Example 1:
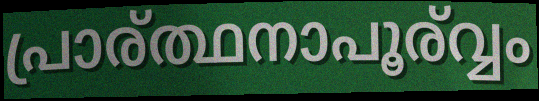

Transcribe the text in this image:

പ്രാര്ത്ഥനാപൂര്വ്വം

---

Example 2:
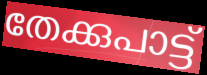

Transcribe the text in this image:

തേക്കുപാട്ട്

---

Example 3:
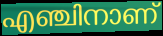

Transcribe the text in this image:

എഞ്ചിനാണ്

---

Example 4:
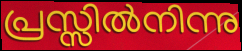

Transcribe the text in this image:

പ്രസ്സിൽനിന്നു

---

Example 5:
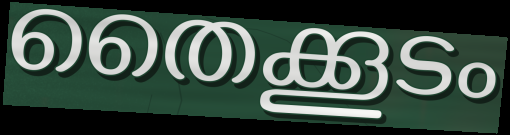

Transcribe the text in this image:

തൈക്കൂടം